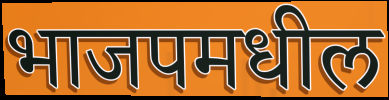
भाजपमधील